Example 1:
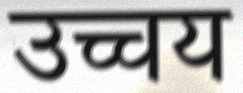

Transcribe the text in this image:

उच्चय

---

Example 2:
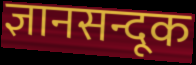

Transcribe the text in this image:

ज्ञानसन्दूक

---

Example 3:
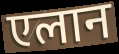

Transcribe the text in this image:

एलान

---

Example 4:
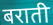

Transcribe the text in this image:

बराती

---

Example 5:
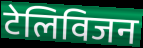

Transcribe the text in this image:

टेलिविजन